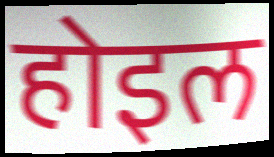
होइल